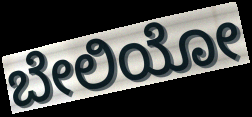
ಬೇಲಿಯೋ